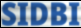
SIDBI